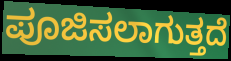
ಪೂಜಿಸಲಾಗುತ್ತದೆ